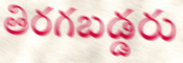
తిరగబడ్డరు